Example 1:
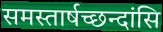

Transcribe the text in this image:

समस्तार्षच्छन्दांसि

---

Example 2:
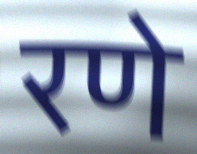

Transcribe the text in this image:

रणे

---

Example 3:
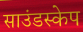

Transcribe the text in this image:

साउंडस्केप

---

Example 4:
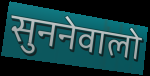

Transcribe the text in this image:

सुननेवालो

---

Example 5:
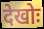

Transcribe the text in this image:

देखोः